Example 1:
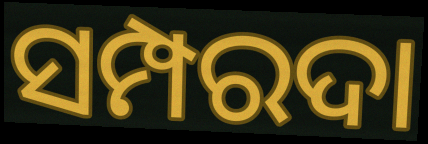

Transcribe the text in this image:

ସମ୍ପରଦା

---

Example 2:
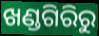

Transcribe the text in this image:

ଖଣ୍ଡଗିରିରୁ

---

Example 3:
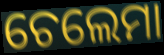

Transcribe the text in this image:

ଚେଲେମା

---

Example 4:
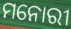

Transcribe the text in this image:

ମନୋରୀ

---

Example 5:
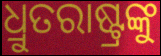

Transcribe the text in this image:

ଧ୍ରୁତରାଷ୍ଟ୍ରଙ୍କୁ